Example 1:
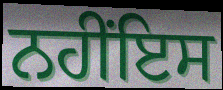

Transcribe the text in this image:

ਨਹੀਂਇਸ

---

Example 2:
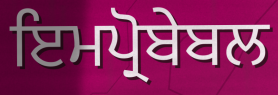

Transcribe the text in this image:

ਇਮਪ੍ਰੋਬੇਬਲ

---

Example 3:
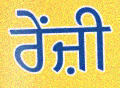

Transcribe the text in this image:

ਰੇਂਜ਼ੀ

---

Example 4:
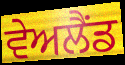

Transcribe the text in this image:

ਵੇਅਲੈਂਡ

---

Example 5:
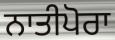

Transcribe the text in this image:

ਨਾਤੀਪੋਰਾ